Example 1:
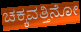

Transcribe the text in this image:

ಚಕ್ಕವತ್ತಿನೋ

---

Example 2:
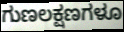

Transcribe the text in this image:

ಗುಣಲಕ್ಷಣಗಳೂ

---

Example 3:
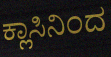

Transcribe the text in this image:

ಕ್ಲಾಸಿನಿಂದ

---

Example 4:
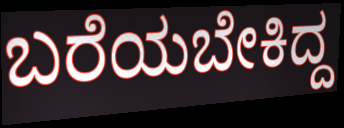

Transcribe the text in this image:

ಬರೆಯಬೇಕಿದ್ದ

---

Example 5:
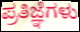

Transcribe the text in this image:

ಪ್ರತಿಜ್ಞೆಗಳು